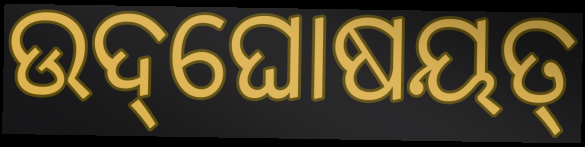
ଉଦ୍‌ଘୋଷୟତ୍